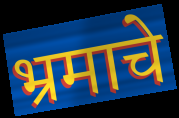
भ्रमाचे